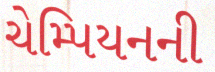
ચેમ્પિયનની